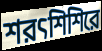
শরৎশিশিরে